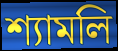
শ্যামলি